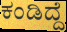
ಕಂಡಿದ್ದೆ